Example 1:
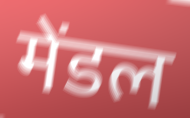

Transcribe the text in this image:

मेंडल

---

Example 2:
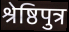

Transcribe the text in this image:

श्रेष्ठिपुत्र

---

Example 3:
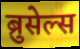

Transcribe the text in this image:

ब्रुसेल्स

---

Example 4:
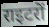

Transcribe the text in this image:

राइटरों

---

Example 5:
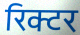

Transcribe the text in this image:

रिक्टर